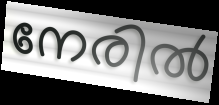
നേരിൽ